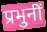
प्रभुनीं